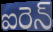
ఐరెన్